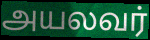
அயலவர்